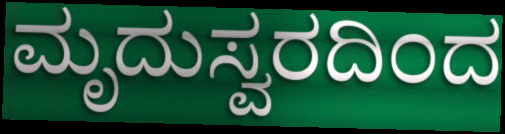
ಮೃದುಸ್ವರದಿಂದ